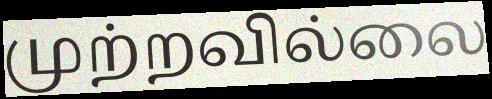
முற்றவில்லை